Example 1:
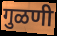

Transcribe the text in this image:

गुळणी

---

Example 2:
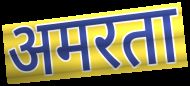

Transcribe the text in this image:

अमरता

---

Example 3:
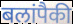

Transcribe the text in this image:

बलांपैकी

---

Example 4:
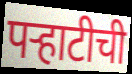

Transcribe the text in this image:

पऱ्हाटीची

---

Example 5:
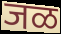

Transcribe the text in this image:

जळ